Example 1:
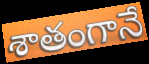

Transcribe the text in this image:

శాతంగానే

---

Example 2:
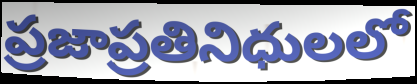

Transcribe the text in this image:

ప్రజాప్రతినిధులలో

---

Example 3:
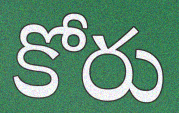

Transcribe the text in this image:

కోరు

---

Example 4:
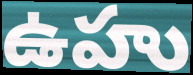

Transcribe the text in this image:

ఉహు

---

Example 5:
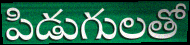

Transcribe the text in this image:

పిడుగులతో